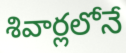
శివార్లలోనే